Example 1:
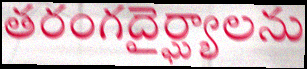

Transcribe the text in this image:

తరంగదైర్ఘ్యాలను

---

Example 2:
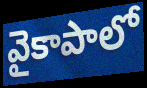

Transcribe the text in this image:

వైకాపాలో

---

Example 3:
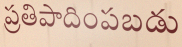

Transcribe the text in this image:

ప్రతిపాదింపబడు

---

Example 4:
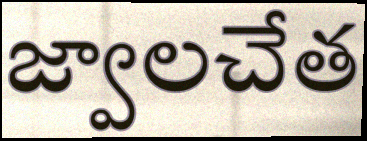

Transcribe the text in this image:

జ్వాలచేత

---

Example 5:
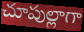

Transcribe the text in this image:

చూపుల్లాగా